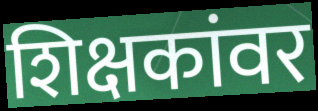
शिक्षकांवर